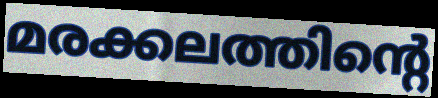
മരക്കലത്തിന്റെ